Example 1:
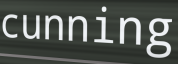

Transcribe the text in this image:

cunning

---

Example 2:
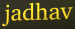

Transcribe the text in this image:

jadhav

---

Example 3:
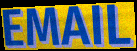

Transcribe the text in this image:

EMAIL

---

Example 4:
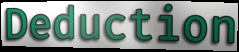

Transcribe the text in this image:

Deduction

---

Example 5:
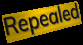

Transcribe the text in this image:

Repealed